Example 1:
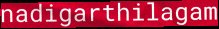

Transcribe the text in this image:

nadigarthilagam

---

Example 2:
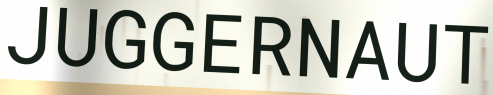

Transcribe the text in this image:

JUGGERNAUT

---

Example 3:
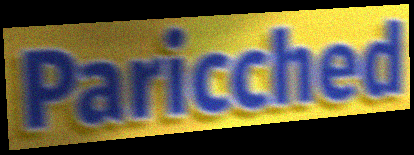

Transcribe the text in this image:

Paricched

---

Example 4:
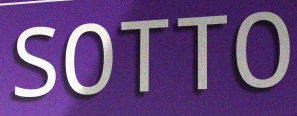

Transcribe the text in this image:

SOTTO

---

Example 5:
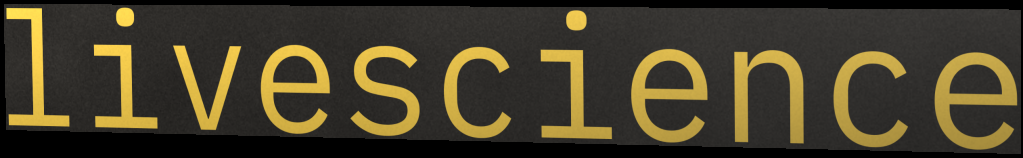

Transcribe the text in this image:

livescience